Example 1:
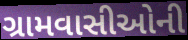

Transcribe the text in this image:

ગ્રામવાસીઓની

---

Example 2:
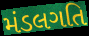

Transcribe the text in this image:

મંડલગતિ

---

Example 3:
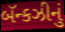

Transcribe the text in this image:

બૅન્કઝીનું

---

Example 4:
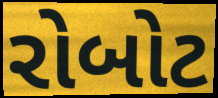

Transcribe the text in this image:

રોબોટ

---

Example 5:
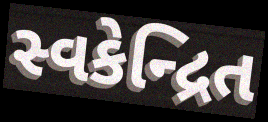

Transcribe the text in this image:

સ્વકેન્દ્રિત